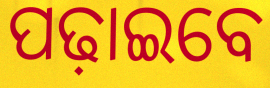
ପଢ଼ାଇବେ